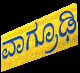
ವಾಗ್ರೂಢಿ